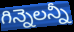
గిన్నెలన్నీ